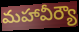
మహావీర్యౌ